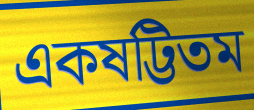
একষট্টিতম